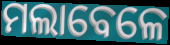
ମଲାବେଳେ